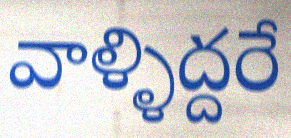
వాళ్ళిద్దరే